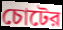
চোটের